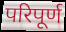
परिपूर्ण